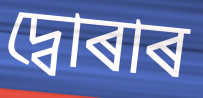
দ্বোৰাৰ